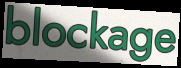
blockage